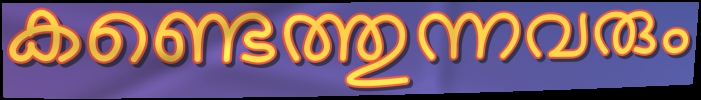
കണ്ടെത്തുന്നവരും